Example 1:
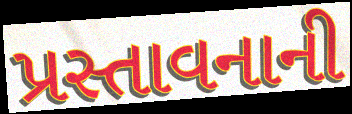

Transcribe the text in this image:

પ્રસ્તાવનાની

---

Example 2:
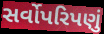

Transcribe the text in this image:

સર્વોપરિપણું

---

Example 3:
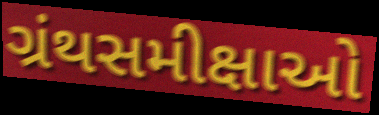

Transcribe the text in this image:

ગ્રંથસમીક્ષાઓ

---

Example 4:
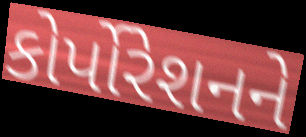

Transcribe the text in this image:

કોર્પોરેશનને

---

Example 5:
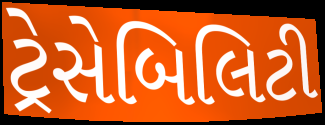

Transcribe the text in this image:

ટ્રેસેબિલિટી